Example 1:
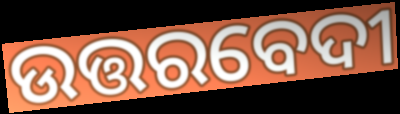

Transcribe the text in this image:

ଉତ୍ତରବେଦୀ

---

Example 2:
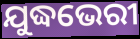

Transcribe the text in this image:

ଯୁଦ୍ଧଭେରୀ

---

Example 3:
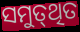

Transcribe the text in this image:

ସମୁତ୍‌ଥିତ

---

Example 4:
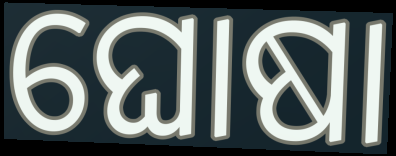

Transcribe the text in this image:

ଘୋଷା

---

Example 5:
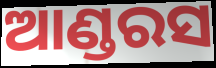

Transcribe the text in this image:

ଆଣ୍ଡରସ